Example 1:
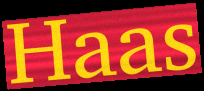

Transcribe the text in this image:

Haas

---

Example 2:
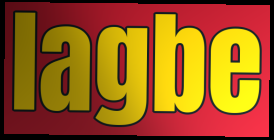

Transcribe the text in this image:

lagbe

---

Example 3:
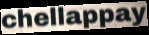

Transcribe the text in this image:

chellappay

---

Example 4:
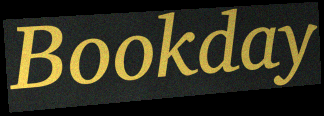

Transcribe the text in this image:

Bookday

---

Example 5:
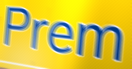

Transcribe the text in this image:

Prem